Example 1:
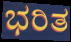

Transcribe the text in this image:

ಭರಿತ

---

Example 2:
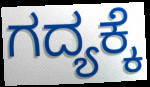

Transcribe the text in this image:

ಗದ್ಯಕ್ಕೆ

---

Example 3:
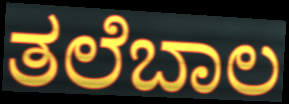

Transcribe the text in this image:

ತಲೆಬಾಲ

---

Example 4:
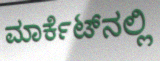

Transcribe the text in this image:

ಮಾರ್ಕೆಟ್‍ನಲ್ಲಿ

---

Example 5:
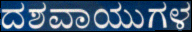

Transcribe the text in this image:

ದಶವಾಯುಗಳ